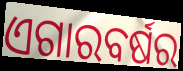
ଏଗାରବର୍ଷର